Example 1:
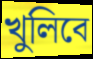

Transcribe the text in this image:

খুলিবে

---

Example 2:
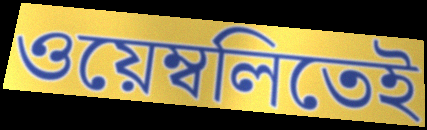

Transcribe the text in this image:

ওয়েম্বলিতেই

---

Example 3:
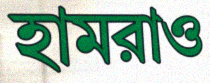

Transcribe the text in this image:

হামরাও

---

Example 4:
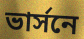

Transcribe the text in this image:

ভার্সনে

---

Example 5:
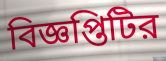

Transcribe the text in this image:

বিজ্ঞপ্তিটির